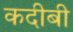
कदीबी